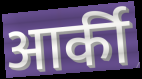
आर्की